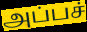
அப்பச்